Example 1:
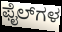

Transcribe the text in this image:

ಫೈಲ್‌ಗಳ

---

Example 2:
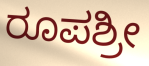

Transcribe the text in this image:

ರೂಪಶ್ರೀ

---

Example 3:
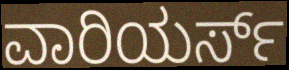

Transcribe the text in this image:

ವಾರಿಯರ್ಸ್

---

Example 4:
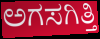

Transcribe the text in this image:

ಅಗಸಗಿತ್ತಿ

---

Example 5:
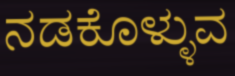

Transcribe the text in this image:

ನಡಕೊಳ್ಳುವ